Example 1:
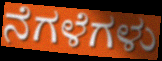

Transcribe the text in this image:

ನೆಗಳೆಗಳು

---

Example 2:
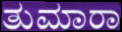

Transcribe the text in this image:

ತುಮಾರಾ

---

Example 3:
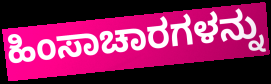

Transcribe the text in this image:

ಹಿಂಸಾಚಾರಗಳನ್ನು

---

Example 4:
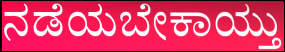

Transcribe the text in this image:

ನಡೆಯಬೇಕಾಯ್ತು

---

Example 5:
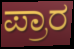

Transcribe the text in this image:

ಪ್ರಾರ